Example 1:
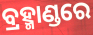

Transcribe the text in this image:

ବ୍ରହ୍ମାଣ୍ଡରେ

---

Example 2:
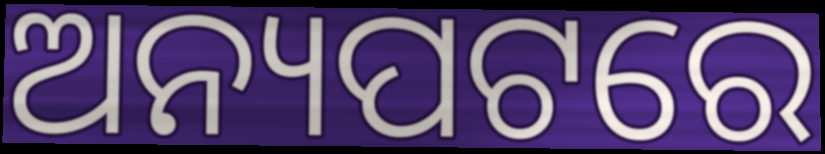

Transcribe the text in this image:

ଅନ୍ୟପଟରେ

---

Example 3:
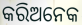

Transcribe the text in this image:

କରିଅନେକ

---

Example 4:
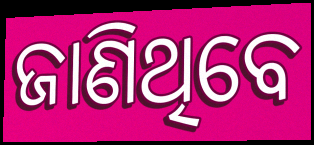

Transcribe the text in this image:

ଜାଣିଥିବେ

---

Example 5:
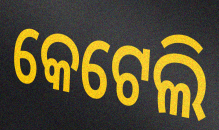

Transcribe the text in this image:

କେଟେଲି